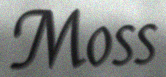
Moss